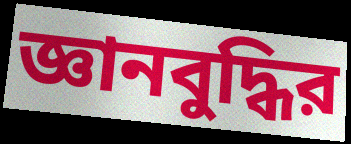
জ্ঞানবুদ্ধির